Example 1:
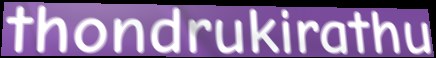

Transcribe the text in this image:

thondrukirathu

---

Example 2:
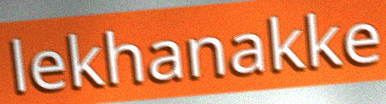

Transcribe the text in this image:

lekhanakke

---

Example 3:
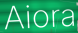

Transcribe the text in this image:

Aiora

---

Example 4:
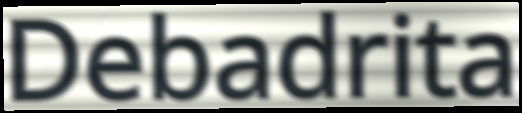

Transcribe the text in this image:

Debadrita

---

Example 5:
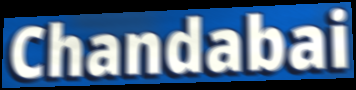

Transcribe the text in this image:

Chandabai